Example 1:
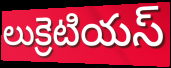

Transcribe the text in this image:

లుక్రెటియస్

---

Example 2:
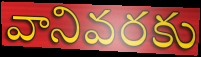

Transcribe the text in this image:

వానివరకు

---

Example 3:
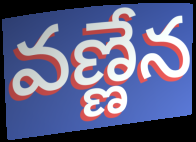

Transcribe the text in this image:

వణ్ణేన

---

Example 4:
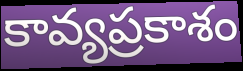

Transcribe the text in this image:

కావ్యప్రకాశం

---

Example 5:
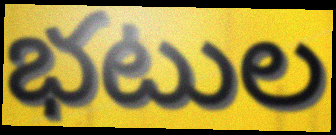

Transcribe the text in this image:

భటుల